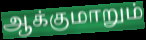
ஆக்குமாறும்